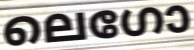
ലെഗോ